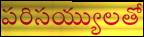
పరిసయ్యులతో